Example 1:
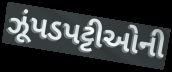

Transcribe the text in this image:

ઝૂંપડપટ્ટીઓની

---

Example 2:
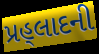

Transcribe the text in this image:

પ્રહ્‌લાદની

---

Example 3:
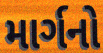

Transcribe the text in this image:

માર્ગનો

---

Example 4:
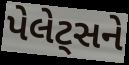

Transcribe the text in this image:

પેલેટ્સને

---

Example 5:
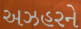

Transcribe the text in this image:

અઝહરને